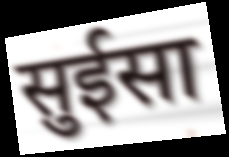
सुईसा